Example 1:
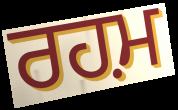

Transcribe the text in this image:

ਰਹ਼ਮ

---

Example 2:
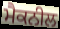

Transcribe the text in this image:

ਮੈਕਨੀਲ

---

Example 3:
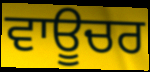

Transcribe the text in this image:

ਵਾਊਚਰ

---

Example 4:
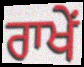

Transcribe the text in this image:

ਰਾਖੇਂ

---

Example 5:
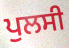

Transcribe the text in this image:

ਪੁਲਸੀ